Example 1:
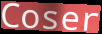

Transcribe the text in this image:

Coser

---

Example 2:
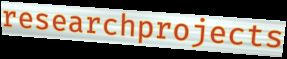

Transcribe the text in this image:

researchprojects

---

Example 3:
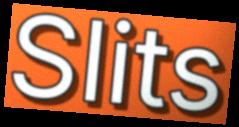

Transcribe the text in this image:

Slits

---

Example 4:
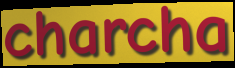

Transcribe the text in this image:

charcha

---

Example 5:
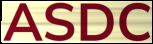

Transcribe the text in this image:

ASDC